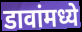
डावांमध्ये